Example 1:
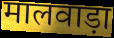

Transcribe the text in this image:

मालवाड़ा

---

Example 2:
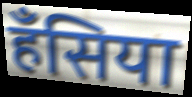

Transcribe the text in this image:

हँसिया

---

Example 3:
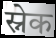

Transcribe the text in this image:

स्नेक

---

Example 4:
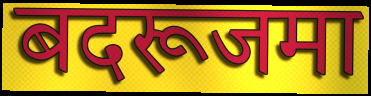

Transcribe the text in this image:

बदरूजमा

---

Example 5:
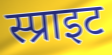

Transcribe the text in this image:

स्प्राइट